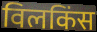
विलकिंस